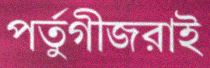
পর্তুগীজরাই